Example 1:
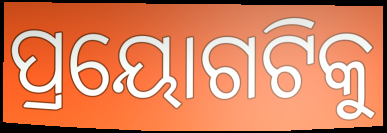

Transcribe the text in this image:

ପ୍ରୟୋଗଟିକୁ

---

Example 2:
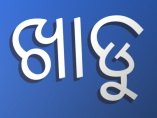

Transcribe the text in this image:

ଖାଡୁ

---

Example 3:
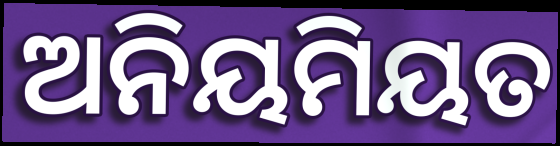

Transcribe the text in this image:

ଅନିୟମିୟତ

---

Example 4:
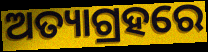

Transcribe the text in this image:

ଅତ୍ୟାଗ୍ରହରେ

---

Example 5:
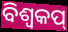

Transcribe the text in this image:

ବିଶ୍ବକପ୍